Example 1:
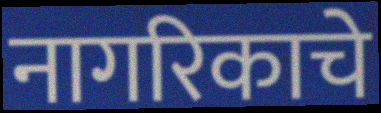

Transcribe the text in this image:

नागरिकाचे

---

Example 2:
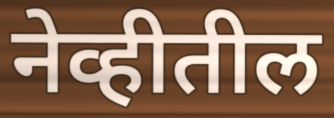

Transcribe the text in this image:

नेव्हीतील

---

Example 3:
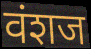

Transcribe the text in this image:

वंशज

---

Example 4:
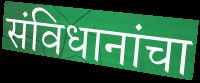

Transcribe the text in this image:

संविधानांचा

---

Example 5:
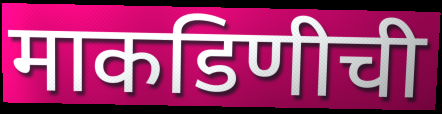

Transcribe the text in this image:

माकडिणीची